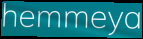
hemmeya